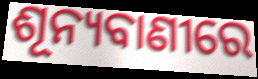
ଶୂନ୍ୟବାଣୀରେ